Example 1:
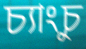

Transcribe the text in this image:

চ্যাংচু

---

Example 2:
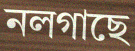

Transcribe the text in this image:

নলগাছে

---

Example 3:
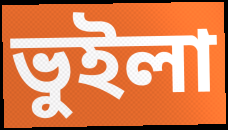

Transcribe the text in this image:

ভুইলা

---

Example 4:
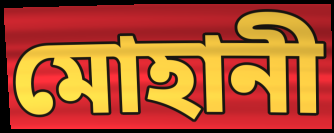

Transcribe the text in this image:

মোহানী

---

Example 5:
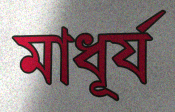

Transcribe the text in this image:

মাধূর্য